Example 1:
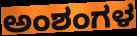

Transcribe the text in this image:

ಅಂಶಂಗಳ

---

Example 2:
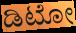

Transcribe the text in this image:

ಡಿಟೋ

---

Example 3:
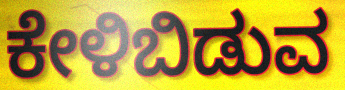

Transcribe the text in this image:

ಕೇಳಿಬಿಡುವ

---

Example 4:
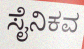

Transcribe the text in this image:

ಸೈನಿಕವ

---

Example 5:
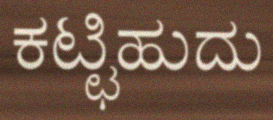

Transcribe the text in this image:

ಕಟ್ಟಿಹುದು